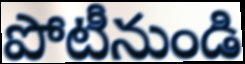
పోటీనుండి